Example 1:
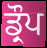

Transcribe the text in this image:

ਡ੍ਰੌਪ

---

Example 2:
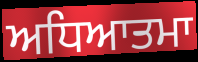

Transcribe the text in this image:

ਅਧਿਆਤਮਾ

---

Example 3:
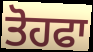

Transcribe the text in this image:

ਤੋਹਫਾ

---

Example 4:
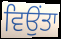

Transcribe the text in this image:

ਵਿਉਂਤਾ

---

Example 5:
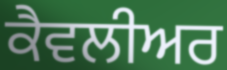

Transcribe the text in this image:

ਕੈਵਲੀਅਰ